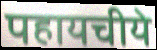
पहायचीये